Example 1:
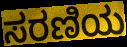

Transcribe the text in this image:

ಸರಣಿಯ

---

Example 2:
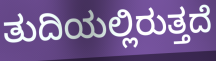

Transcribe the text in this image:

ತುದಿಯಲ್ಲಿರುತ್ತದೆ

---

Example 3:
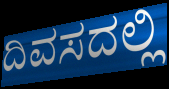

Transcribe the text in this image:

ದಿವಸದಲ್ಲಿ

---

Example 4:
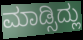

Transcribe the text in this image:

ಮಾಡ್ಸಿದ್ಲು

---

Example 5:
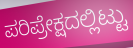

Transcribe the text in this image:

ಪರಿಪ್ರೇಕ್ಷದಲ್ಲಿಟ್ಟು